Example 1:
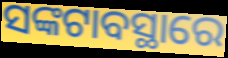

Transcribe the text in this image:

ସଙ୍କଟାବସ୍ଥାରେ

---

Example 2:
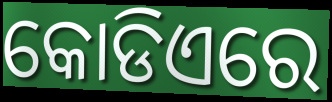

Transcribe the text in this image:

କୋଡିଏରେ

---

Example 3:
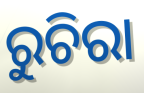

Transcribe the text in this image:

ରୁଚିରା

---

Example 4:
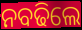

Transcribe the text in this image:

ନବଢିଲେ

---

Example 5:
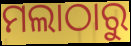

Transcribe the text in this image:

ମଲାଠାରୁ